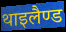
थाइलैण्ड